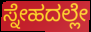
ಸ್ನೇಹದಲ್ಲೇ